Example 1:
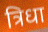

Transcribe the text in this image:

त्रिधा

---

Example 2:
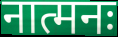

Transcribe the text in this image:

नात्मनः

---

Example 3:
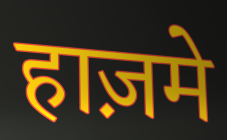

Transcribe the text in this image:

हाज़मे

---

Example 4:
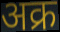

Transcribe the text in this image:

अक्र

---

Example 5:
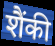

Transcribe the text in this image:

शैंकी